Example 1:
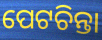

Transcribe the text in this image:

ପେଟଚିନ୍ତା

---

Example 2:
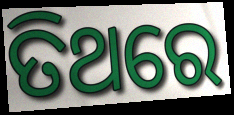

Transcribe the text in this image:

ତିଥରେ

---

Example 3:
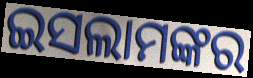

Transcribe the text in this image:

ଇସଲାମଙ୍କର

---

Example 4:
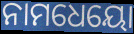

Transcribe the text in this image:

ନାମଧେୟୋ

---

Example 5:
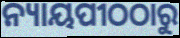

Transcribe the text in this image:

ନ୍ୟାୟପୀଠଠାରୁ